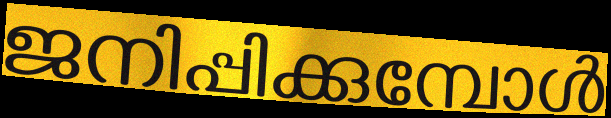
ജനിപ്പിക്കുമ്പോൾ